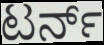
ಟರ್ನ್